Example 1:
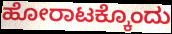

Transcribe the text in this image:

ಹೋರಾಟಕ್ಕೊಂದು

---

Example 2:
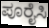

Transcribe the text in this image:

ಪೂರೈಸಿ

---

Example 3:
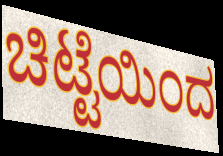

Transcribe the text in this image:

ಚಿಟ್ಟೆಯಿಂದ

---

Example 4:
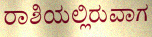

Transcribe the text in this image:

ರಾಶಿಯಲ್ಲಿರುವಾಗ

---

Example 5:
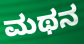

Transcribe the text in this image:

ಮಥನ